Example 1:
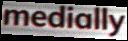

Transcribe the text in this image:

medially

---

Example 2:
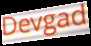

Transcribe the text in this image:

Devgad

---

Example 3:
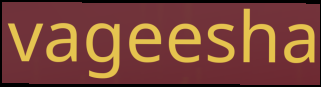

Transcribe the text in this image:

vageesha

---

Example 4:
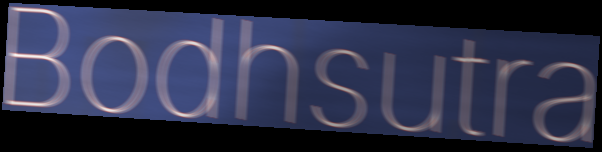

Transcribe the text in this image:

Bodhsutra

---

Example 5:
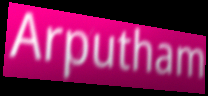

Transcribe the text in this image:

Arputham